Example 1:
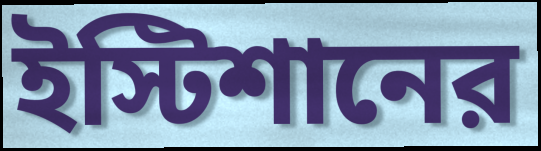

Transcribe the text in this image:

ইস্টিশানের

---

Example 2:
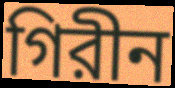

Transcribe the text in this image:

গিরীন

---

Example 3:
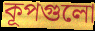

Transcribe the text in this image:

কূপগুলো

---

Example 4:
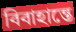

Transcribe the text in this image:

বিবাহান্তে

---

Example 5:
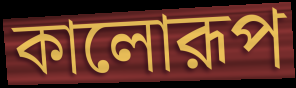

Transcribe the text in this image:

কালোরূপ